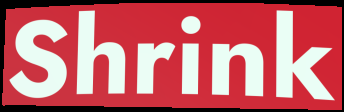
Shrink